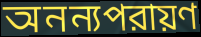
অনন্যপরায়ণ